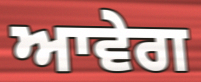
ਆਵੇਗ